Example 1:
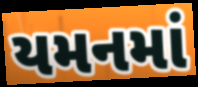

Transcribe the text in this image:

યમનમાં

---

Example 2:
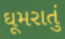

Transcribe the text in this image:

ઘૂમરાતું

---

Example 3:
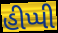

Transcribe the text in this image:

હીપ્પી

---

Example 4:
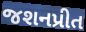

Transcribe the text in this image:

જશનપ્રીત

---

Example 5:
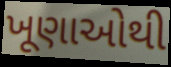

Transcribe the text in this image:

ખૂણાઓથી